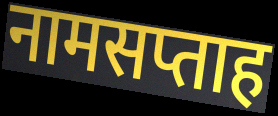
नामसप्ताह